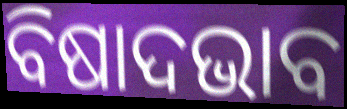
ବିଷାଦଭାବ